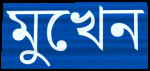
মুখেন